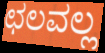
ಛಲವಲ್ಲ